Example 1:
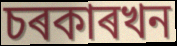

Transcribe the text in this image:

চৰকাৰখন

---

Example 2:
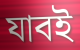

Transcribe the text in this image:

যাবই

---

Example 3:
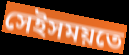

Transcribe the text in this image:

সেইসময়তে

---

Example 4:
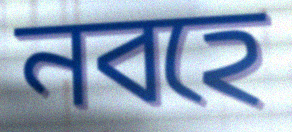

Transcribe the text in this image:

নবহে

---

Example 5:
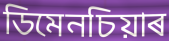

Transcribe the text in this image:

ডিমেনচিয়াৰ